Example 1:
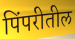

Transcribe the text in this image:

पिंपरीतील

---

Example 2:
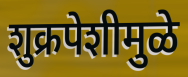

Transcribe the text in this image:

शुक्रपेशीमुळे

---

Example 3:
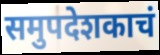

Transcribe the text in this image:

समुपदेशकाचं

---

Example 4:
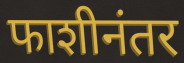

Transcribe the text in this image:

फाशीनंतर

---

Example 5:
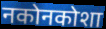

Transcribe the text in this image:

नकोनकोशा